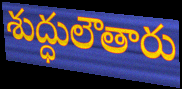
శుద్ధులౌతారు